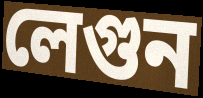
লেগুন